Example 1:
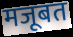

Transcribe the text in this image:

मजूबत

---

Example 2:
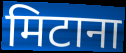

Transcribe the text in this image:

मिटाना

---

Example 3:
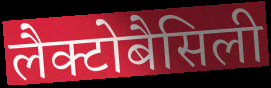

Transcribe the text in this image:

लैक्टोबैसिली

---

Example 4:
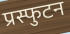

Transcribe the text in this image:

प्रस्‍फुटन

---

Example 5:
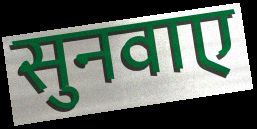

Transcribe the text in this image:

सुनवाए